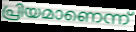
പ്രിയമാണെന്ന്